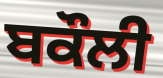
ਬਕੌਲੀ